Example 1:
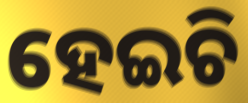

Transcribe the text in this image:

ହେଇଚି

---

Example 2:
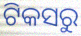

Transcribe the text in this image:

ଟିକସରୁ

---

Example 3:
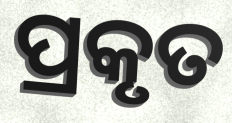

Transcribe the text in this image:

ପ୍ରକୃତ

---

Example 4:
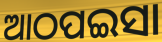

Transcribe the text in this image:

ଆଠପଇସା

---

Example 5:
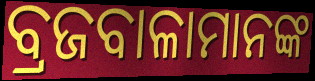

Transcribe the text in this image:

ବ୍ରଜବାଳାମାନଙ୍କ